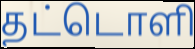
தட்டொளி